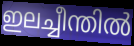
ഇലച്ചീന്തിൽ